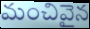
మంచివైన